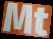
Mt